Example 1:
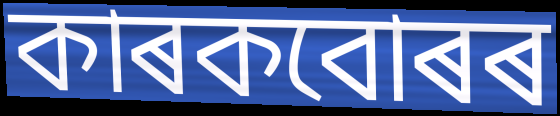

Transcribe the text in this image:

কাৰকবোৰৰ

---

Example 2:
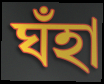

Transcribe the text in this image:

ঘঁহা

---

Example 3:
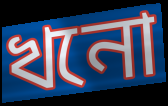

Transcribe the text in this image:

খনো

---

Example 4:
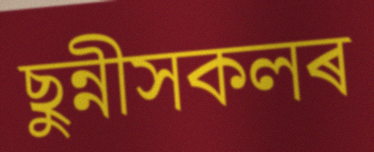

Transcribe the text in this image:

ছুন্নীসকলৰ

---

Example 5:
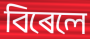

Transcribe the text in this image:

বিৰেলে